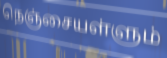
நெஞ்சையள்ளும்